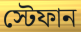
স্টেফান